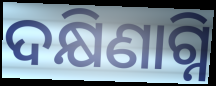
ଦକ୍ଷିଣାଗ୍ନି